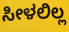
ಸೀಳಲಿಲ್ಲ